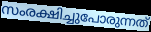
സംരക്ഷിച്ചുപോരുന്നത്